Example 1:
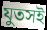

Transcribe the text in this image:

যুতসই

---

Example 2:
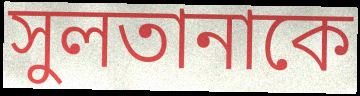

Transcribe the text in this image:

সুলতানাকে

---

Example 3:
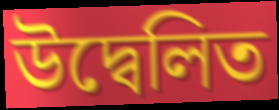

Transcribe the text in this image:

উদ্বেলিত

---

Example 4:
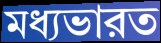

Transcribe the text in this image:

মধ্যভারত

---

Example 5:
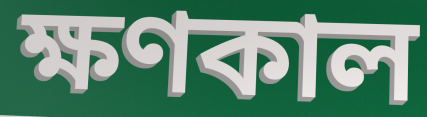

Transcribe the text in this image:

ক্ষণকাল